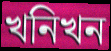
খনিখন